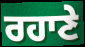
ਰਹਾਣੇ